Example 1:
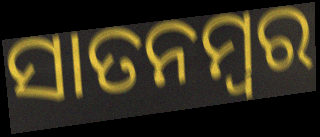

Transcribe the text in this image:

ସାତନମ୍ବର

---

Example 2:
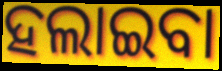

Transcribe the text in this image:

ହଲାଇବା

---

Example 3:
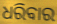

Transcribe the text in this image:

ଧରିବାର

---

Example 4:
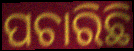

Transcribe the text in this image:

ପଚାରିଛି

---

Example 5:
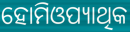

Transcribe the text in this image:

ହୋମିଓପ୍ୟାଥିକ